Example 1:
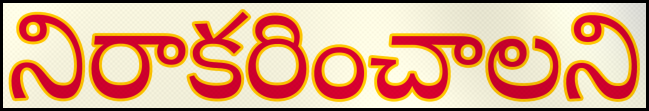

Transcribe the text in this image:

నిరాకరించాలని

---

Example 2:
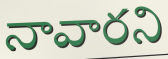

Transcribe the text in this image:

నావారని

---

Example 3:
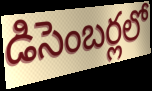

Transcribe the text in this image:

డిసెంబర్లలో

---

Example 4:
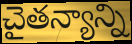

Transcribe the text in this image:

చైతన్యాన్ని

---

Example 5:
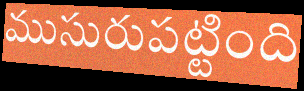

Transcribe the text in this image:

ముసురుపట్టింది